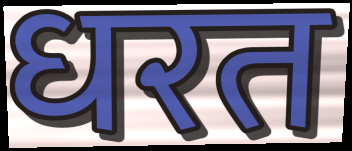
धरत